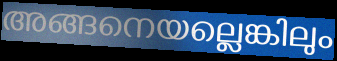
അങ്ങനെയല്ലെങ്കിലും